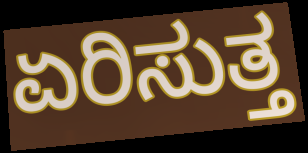
ಏರಿಸುತ್ತ